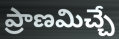
ప్రాణమిచ్చే